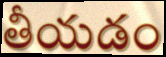
తీయడం